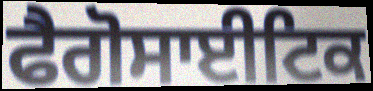
ਫੈਗੋਸਾਈਟਿਕ